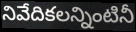
నివేదికలన్నింటినీ